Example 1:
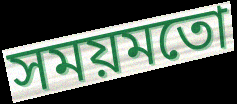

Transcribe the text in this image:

সময়মতো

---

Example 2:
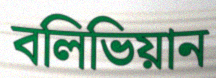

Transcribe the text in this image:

বলিভিয়ান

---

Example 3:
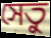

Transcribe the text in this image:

সেতু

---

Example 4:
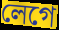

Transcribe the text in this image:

লেগে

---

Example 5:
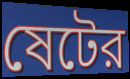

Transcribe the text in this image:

ষেটের